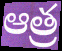
ఆత్ర